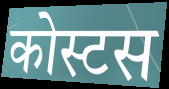
कोस्टस